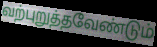
வற்புறுத்தவேண்டும்